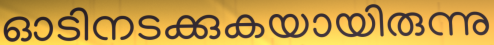
ഓടിനടക്കുകയായിരുന്നു